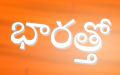
భారత్తో